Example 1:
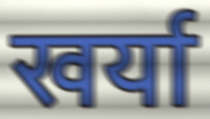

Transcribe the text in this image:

खर्या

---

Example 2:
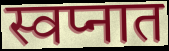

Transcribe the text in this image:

स्वप्नात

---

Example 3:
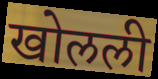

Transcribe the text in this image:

खोलली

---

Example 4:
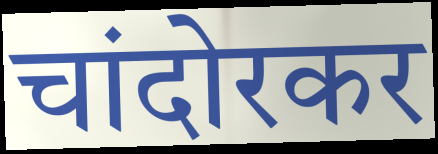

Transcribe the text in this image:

चांदोरकर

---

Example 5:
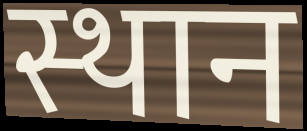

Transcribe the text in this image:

स्थान